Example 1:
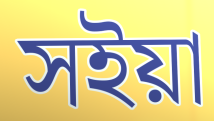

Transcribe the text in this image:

সইয়া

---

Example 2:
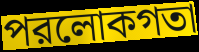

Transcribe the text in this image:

পরলোকগতা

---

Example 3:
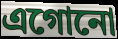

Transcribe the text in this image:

এগোনো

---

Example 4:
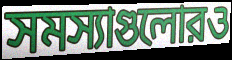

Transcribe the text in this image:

সমস্যাগুলোরও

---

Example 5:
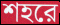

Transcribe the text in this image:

শহরে